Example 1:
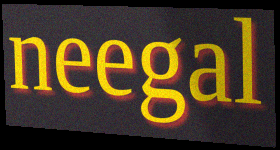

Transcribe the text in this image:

neegal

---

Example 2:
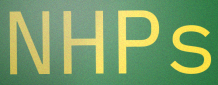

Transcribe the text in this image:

NHPs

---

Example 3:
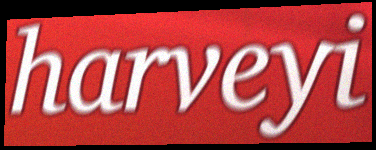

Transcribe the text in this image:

harveyi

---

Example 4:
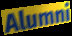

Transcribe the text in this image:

Alumni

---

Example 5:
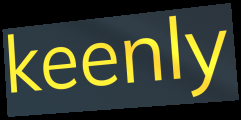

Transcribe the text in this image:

keenly